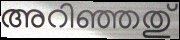
അറിഞ്ഞതു്